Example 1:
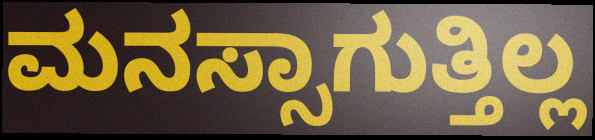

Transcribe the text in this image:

ಮನಸ್ಸಾಗುತ್ತಿಲ್ಲ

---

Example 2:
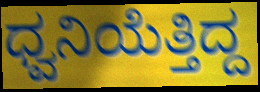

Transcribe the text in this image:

ಧ್ವನಿಯೆತ್ತಿದ್ದ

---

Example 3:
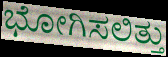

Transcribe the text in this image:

ಭೋಗಿಸಲಿತ್ತು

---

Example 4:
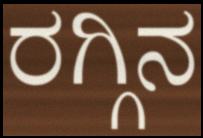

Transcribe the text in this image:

ರಗ್ಗಿನ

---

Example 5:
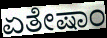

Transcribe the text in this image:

ಏತೇಷಾಂ